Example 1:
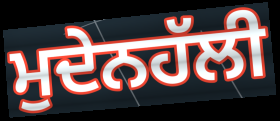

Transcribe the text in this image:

ਮੁਦੇਨਹੱਲੀ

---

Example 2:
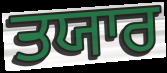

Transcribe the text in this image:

ਤਯਾਰ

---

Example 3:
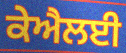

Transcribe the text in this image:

ਕੇਐਲਈ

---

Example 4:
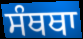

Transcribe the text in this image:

ਸੰਥਥਾ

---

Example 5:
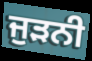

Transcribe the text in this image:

ਜੁੜਨੀ